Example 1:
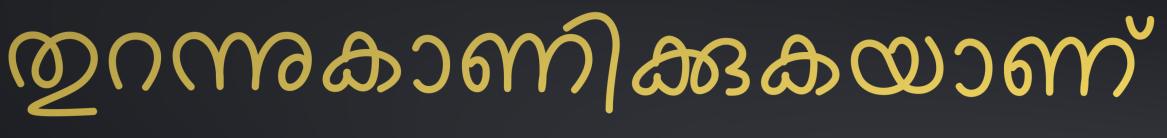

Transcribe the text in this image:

തുറന്നുകാണിക്കുകയാണ്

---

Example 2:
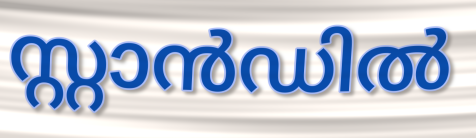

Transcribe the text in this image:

സ്റ്റാൻഡിൽ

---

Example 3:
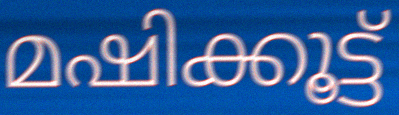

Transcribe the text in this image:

മഷിക്കൂട്ട്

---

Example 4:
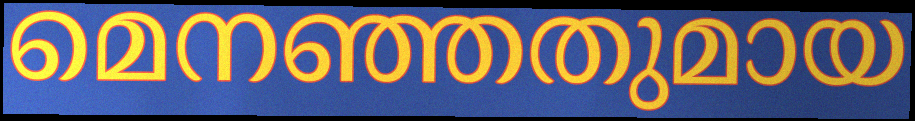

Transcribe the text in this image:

മെനഞ്ഞതുമായ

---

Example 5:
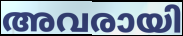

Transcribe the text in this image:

അവരായി